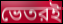
ভেতরই